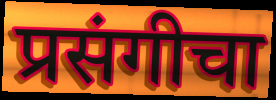
प्रसंगीचा